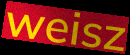
weisz